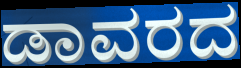
ಡಾವರದ